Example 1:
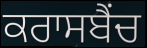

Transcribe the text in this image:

ਕਰਾਸਬੈਂਚ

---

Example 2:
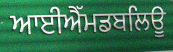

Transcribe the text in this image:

ਆਈਐੱਮਡਬਲਿਊ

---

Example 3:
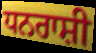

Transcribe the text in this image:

ਧਨਰਾਸ਼ੀ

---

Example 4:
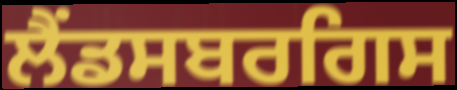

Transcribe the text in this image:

ਲੈਂਡਸਬਰਗਿਸ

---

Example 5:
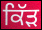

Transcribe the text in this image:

ਕਿੱੜ